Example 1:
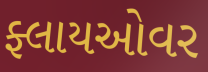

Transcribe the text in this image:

ફ્લાયઓવર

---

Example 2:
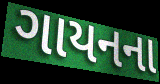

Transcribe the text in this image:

ગાયનના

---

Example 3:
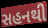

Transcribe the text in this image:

સહનથી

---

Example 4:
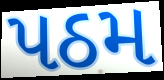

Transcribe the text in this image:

પઠમ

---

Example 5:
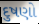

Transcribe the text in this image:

દુષણો